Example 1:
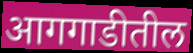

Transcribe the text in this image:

आगगाडीतील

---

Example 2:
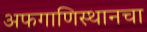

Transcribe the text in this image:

अफगाणिस्थानचा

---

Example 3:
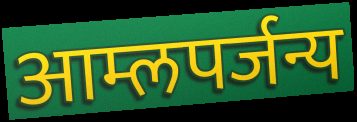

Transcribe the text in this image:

आम्लपर्जन्य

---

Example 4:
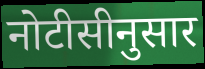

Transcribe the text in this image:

नोटीसीनुसार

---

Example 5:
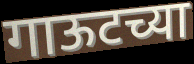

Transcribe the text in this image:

गाऊटच्या